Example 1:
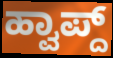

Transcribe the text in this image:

ಹ್ವಾಪ್ದ್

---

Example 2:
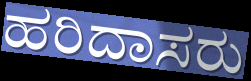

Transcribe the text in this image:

ಹರಿದಾಸರು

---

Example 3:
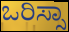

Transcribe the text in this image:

ಒರಿಸ್ಸಾ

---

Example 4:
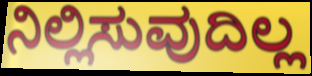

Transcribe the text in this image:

ನಿಲ್ಲಿಸುವುದಿಲ್ಲ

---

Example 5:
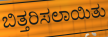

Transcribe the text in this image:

ಬಿತ್ತರಿಸಲಾಯಿತು